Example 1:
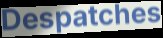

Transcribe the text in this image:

Despatches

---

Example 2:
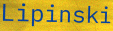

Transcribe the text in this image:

Lipinski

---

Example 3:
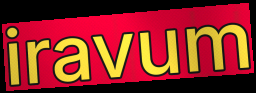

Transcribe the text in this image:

iravum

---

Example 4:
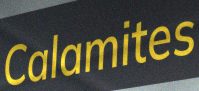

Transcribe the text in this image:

Calamites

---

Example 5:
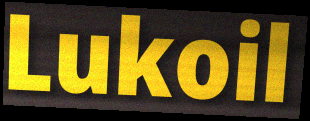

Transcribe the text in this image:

Lukoil